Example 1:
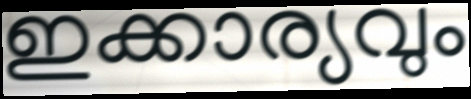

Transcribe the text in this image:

ഇക്കാര്യവും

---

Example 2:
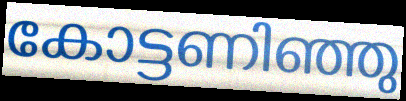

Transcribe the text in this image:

കോട്ടണിഞ്ഞു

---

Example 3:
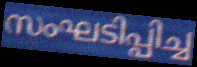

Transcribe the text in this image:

സംഘടിപ്പിച്ച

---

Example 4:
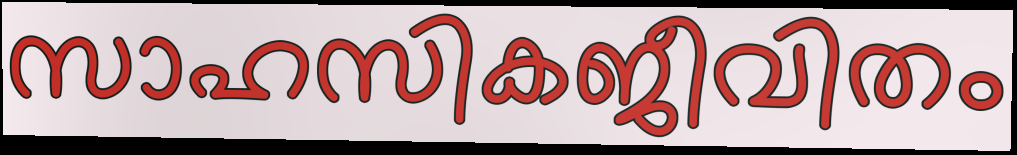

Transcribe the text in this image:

സാഹസികജീവിതം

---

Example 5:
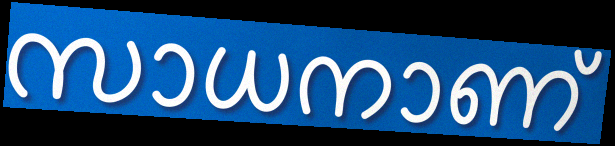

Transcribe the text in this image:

സാധനാണ്